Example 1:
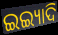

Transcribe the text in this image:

ଇଇ୍ୟାଦି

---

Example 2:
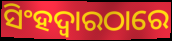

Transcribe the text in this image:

ସିଂହଦ୍ୱାରଠାରେ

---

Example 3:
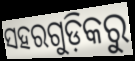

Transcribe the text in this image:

ସହରଗୁଡ଼ିକରୁ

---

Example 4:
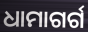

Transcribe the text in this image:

ଧାମାଗର୍ଗ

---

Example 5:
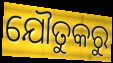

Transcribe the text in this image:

ଯୌତୁକରୁ